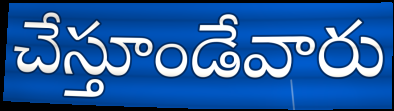
చేస్తూండేవారు